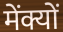
मेंक्यों